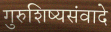
गुरुशिष्यसंवादे